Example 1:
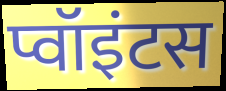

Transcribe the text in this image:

प्वॉइंटस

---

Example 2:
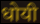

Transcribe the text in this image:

धोयी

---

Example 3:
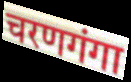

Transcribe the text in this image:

चरणगंगा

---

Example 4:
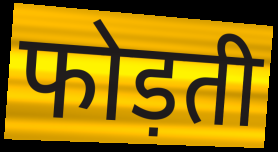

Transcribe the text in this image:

फोड़ती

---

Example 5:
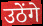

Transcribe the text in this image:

उठेंगे